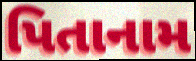
પિતાનામ